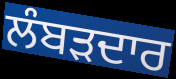
ਲੰਬੜਦਾਰ